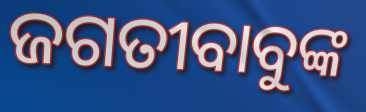
ଜଗତୀବାବୁଙ୍କ